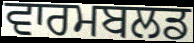
ਵਾਰਮਬਲਡ